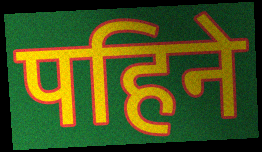
पहिने